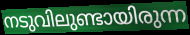
നടുവിലുണ്ടായിരുന്ന